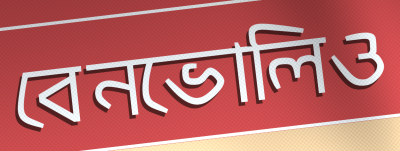
বেনভোলিও